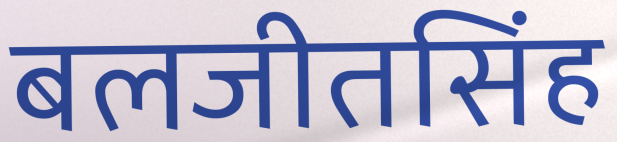
बलजीतसिंह